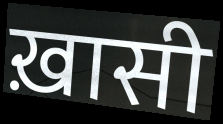
ख़ासी